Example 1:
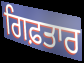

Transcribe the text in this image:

ਗਿਫ਼ਤਾਰ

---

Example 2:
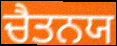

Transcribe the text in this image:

ਚੈਤਨਯ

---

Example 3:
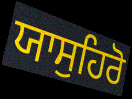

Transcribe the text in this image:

ਯਾਸੁਹਿਰੋ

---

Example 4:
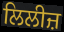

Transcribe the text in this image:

ਲਿਲੀਜ਼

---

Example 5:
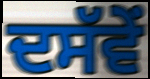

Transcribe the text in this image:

ਦਸੱਵੇਂ